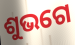
ଶୁଭଗେ